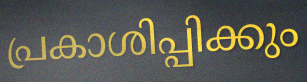
പ്രകാശിപ്പിക്കും